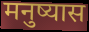
मनुष्यास